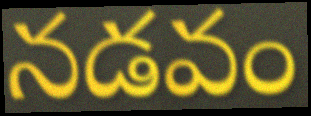
నడవం